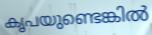
കൃപയുണ്ടെങ്കിൽ